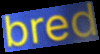
bred